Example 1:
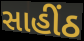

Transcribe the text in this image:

સાહીંઠ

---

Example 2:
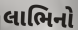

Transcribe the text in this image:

લાભિનો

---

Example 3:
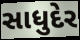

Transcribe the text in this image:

સાધુદેર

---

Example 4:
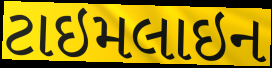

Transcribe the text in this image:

ટાઇમલાઇન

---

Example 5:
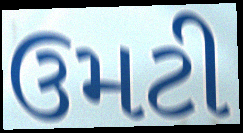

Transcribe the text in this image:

ઉમટી